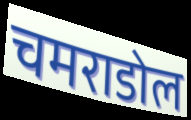
चमराडोल